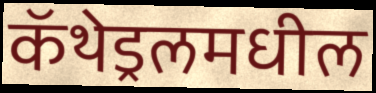
कॅथेड्रलमधील